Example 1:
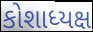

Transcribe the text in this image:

કોશાધ્યક્ષ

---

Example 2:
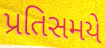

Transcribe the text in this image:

પ્રતિસમયે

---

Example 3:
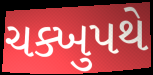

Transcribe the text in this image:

ચક્ખુપથે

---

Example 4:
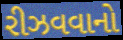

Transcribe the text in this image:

રીઝવવાનો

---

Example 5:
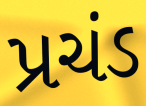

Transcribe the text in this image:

પ્રચંડ